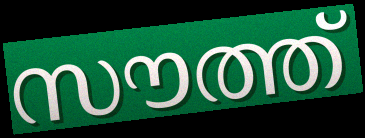
സൗത്ത്